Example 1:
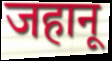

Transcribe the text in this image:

जहानू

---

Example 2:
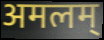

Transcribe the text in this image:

अमलम्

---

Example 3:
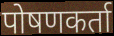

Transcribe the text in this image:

पोषणकर्ता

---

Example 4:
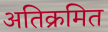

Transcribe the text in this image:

अतिक्रमित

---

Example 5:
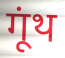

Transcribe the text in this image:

गूंथ